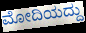
ಮೋದಿಯದ್ದು